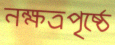
নক্ষত্রপৃষ্ঠে